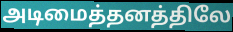
அடிமைத்தனத்திலே